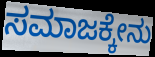
ಸಮಾಜಕ್ಕೇನು